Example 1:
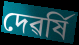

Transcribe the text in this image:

দেৱৰ্ষি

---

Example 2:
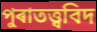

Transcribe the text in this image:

পুৰাতত্ত্ববিদ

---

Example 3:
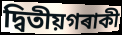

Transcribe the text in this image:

দ্বিতীয়গৰাকী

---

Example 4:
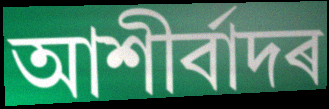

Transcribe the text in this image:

আশীৰ্বাদৰ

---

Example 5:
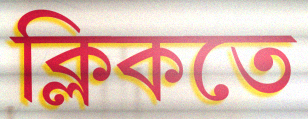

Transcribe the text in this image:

ক্লিকতে